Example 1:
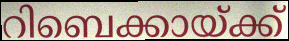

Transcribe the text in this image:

റിബെക്കായ്ക്ക്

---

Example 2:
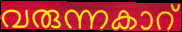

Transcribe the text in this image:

വരുന്നകാറ്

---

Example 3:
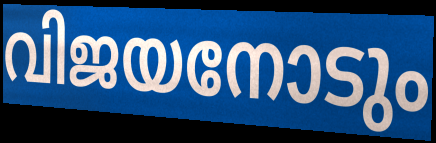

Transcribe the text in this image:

വിജയനോടും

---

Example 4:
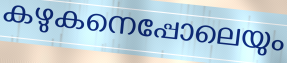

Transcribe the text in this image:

കഴുകനെപ്പോലെയും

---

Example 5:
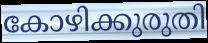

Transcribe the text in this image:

കോഴിക്കുരുതി